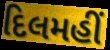
દિલમહીં